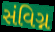
સંવિગ્ન